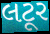
લટૂર